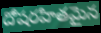
దోషరహితమైన